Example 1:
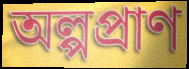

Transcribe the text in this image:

অল্পপ্ৰাণ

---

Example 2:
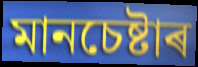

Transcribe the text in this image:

মানচেষ্টাৰ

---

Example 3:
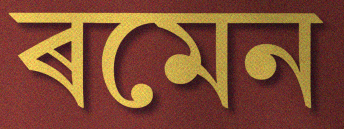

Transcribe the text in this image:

ৰমেন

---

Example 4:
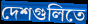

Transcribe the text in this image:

দেশগুলিতে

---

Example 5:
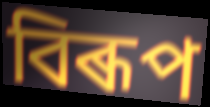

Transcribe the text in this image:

বিৰূপ